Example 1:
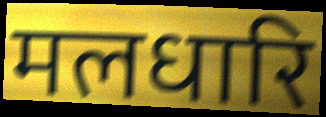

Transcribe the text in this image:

मलधारि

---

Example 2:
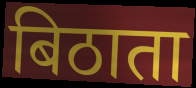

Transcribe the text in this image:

बिठाता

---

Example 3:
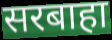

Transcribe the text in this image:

सरबाहा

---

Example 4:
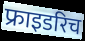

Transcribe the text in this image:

फ्राइडरिच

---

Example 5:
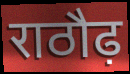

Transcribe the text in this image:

राठौढ़